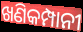
ଖଣିକମ୍ପାନୀ